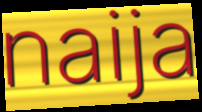
naija